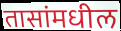
तासांमधील